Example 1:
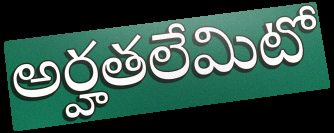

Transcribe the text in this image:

అర్హతలేమిటో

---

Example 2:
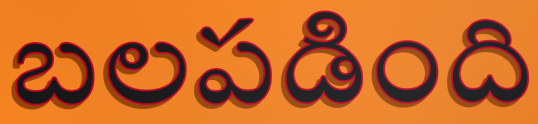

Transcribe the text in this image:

బలపడింది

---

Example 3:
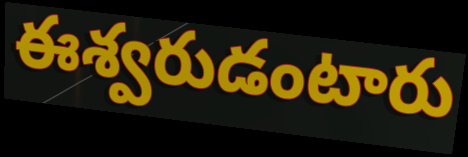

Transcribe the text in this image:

ఈశ్వరుడంటారు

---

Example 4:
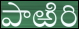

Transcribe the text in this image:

పాఱిరి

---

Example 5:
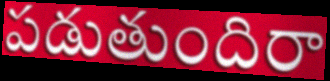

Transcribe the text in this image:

పడుతుందిరా